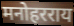
मनोहरराय